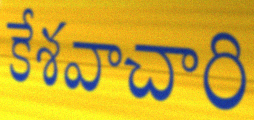
కేశవాచారి